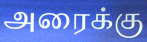
அரைக்கு